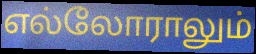
எல்லோராலும்